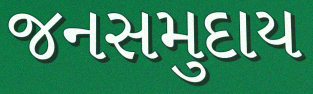
જનસમુદાય